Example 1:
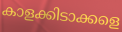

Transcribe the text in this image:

കാളക്കിടാക്കളെ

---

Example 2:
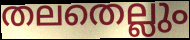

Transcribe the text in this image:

തലതെല്ലും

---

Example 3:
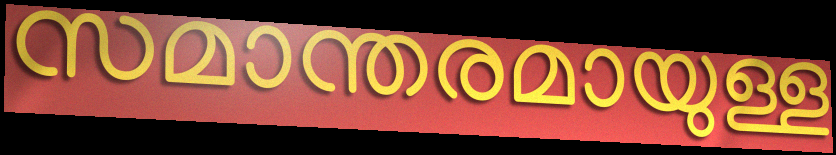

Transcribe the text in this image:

സമാന്തരമായുള്ള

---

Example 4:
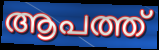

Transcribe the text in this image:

ആപത്ത്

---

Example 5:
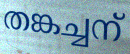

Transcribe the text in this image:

തങ്കച്ചന്